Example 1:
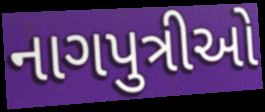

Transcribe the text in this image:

નાગપુત્રીઓ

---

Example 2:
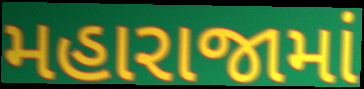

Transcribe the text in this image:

મહારાજામાં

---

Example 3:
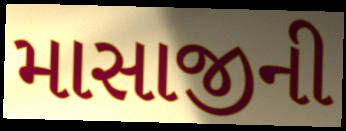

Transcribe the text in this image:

માસાજીની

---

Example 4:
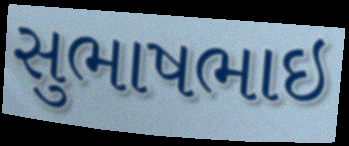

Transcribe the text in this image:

સુભાષભાઇ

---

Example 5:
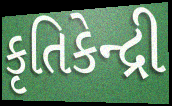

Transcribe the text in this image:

કૃતિકેન્દ્રી